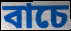
বাচে